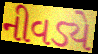
નીવડ્યે